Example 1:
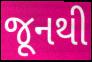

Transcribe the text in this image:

જૂનથી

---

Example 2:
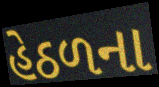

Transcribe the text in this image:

હેઠળના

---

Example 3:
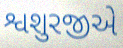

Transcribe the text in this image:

શ્વશુરજીએ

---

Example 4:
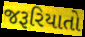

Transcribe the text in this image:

જરૂરિયાતો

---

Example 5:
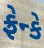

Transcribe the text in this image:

ફ્રેન્કે